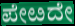
ಪೇೞದೇ